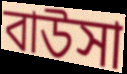
বাউসা